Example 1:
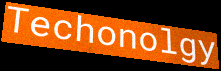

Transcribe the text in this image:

Techonolgy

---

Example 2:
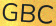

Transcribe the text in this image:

GBC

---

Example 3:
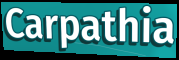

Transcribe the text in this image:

Carpathia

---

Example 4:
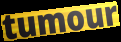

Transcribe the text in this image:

tumour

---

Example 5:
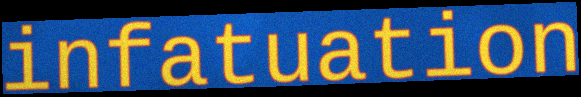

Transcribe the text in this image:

infatuation